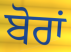
ਬੋਰਾਂ